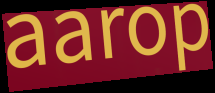
aarop